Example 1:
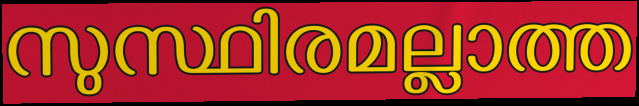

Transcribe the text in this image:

സുസ്ഥിരമല്ലാത്ത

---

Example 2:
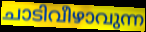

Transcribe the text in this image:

ചാടിവീഴാവുന്ന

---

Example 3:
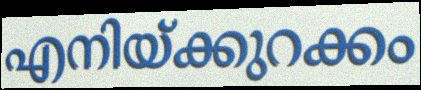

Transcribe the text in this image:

എനിയ്ക്കുറക്കം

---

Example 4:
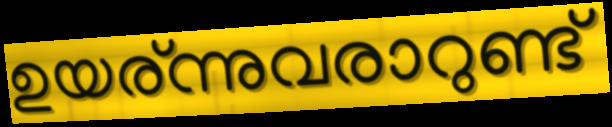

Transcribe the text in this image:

ഉയര്ന്നുവരാറുണ്ട്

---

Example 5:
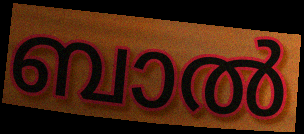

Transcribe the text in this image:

ബാൽ